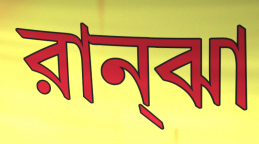
রান্ঝা